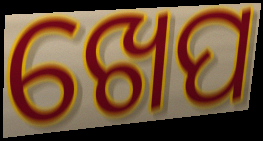
ଖେପ